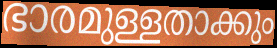
ഭാരമുള്ളതാക്കും